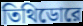
তিথিডোরে